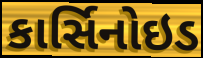
કાર્સિનોઇડ